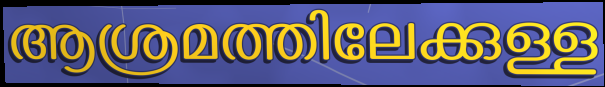
ആശ്രമത്തിലേക്കുള്ള